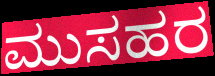
ಮುಸಹರ